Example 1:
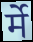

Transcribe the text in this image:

र्मे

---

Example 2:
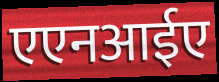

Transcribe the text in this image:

एएनआईए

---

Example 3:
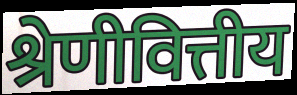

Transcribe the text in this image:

श्रेणीवित्तीय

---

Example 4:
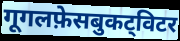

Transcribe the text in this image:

गूगलफ़ेसबुकट्विटर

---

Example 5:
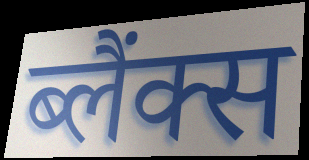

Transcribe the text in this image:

ब्लैंक्स